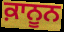
ਕ਼ਾਨੂਨ